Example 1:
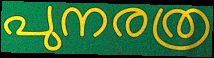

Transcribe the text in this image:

പുനരത്ര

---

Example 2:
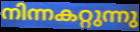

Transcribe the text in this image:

നിന്നകറ്റുന്നു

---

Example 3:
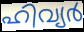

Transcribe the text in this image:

ഹിവ്യർ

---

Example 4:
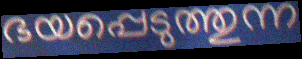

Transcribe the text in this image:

ഭയപ്പെടുത്തുന്ന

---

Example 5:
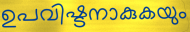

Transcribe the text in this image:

ഉപവിഷ്ടനാകുകയും